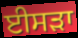
ਈਸੜਾ